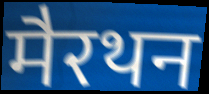
मैरथन